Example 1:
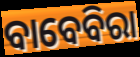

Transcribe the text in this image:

ବାବେବିରା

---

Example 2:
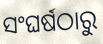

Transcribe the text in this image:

ସଂଘର୍ଷଠାରୁ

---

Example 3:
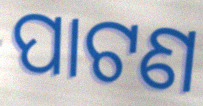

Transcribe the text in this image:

ପାଟଣ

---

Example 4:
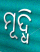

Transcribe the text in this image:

ମୂଦ୍ଧି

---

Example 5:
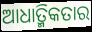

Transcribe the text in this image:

ଆଧାତ୍ମିକତାର